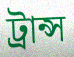
ট্রান্স